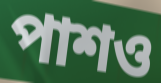
পাশও